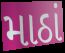
માઠાં